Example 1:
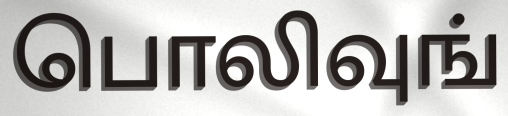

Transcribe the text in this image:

பொலிவுங்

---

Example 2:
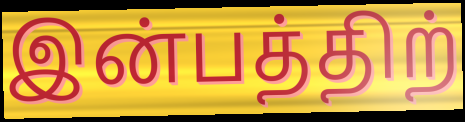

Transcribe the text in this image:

இன்பத்திற்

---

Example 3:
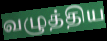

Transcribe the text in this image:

வழுத்திய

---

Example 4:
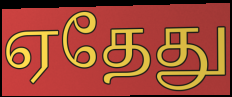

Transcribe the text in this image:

ஏதேது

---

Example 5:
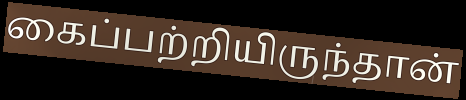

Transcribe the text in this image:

கைப்பற்றியிருந்தான்